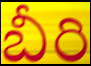
బీరి